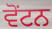
ਵੋਂਟਨ